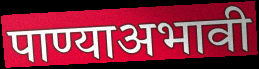
पाण्याअभावी